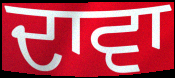
ਦਾਵਾ